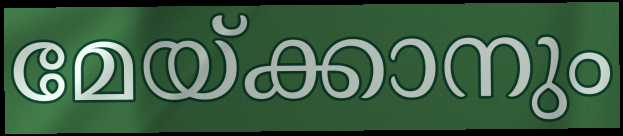
മേയ്ക്കാനും